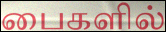
பைகளில்